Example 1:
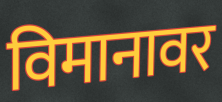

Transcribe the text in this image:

विमानावर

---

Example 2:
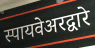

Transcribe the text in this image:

स्पायवेअरद्वारे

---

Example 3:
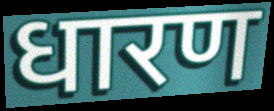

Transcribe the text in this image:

धारण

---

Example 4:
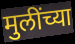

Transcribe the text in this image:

मुलींच्या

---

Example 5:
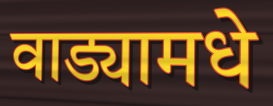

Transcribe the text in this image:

वाड्यामधे